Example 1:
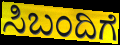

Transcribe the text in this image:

ಸಿಬಂದಿಗೆ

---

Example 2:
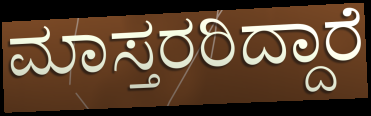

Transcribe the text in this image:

ಮಾಸ್ತರರಿದ್ದಾರೆ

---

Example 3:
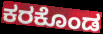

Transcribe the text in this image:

ಕರಕೊಂಡ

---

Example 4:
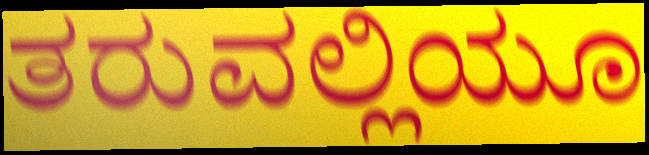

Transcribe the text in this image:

ತರುವಲ್ಲಿಯೂ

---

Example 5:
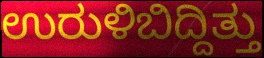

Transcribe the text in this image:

ಉರುಳಿಬಿದ್ದಿತ್ತು